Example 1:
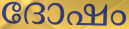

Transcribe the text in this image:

ദോഷം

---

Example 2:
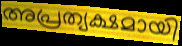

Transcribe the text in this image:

അപ്രത്യക്ഷമായി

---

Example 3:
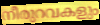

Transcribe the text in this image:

നീരുറവകളും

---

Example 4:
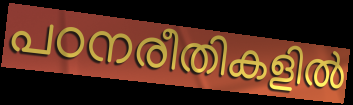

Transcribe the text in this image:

പഠനരീതികളിൽ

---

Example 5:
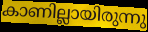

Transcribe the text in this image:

കാണില്ലായിരുന്നു